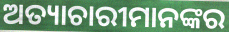
ଅତ୍ୟାଚାରୀମାନଙ୍କର